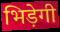
भिड़ेगी